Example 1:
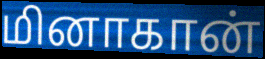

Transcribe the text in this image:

மினாகான்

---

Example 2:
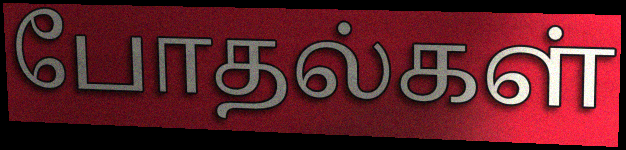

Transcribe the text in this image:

போதல்கள்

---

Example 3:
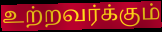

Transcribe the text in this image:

உற்றவர்க்கும்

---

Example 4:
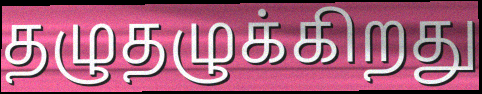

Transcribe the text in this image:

தழுதழுக்கிறது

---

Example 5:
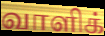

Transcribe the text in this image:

வாளிக்